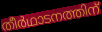
തീർഥാടനത്തിന്